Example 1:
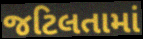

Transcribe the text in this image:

જટિલતામાં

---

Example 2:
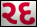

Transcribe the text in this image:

રદ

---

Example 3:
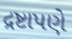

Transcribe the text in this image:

દ્રષ્ટાપણે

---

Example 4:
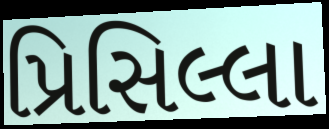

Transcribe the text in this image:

પ્રિસિલ્લા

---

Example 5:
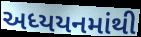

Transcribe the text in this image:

અધ્યયનમાંથી